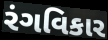
રંગવિકાર